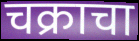
चक्राचा